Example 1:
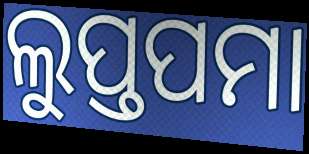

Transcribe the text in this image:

ଲୁପ୍ତପମା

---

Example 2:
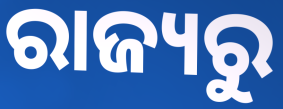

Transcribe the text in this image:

ରାଜ୍ୟରୁ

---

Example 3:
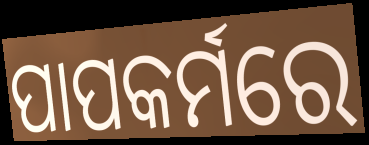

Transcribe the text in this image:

ପାପକର୍ମରେ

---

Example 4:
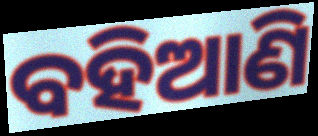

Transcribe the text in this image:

ବହିଆଣି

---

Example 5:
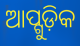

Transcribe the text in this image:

ଆପ୍ଗୁଡ଼ିକ